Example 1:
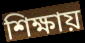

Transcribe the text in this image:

শিক্ষায়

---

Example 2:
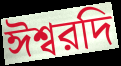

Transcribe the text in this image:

ঈশ্বরদি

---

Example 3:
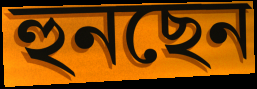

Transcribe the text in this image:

হুনছেন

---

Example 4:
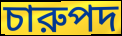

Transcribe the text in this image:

চারুপদ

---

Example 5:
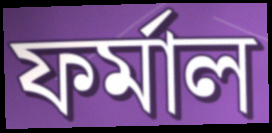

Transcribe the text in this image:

ফর্মাল